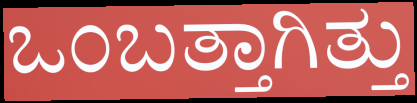
ಒಂಬತ್ತಾಗಿತ್ತು